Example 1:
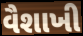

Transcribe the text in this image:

વૈશાખી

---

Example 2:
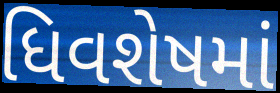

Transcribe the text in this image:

ધિવશેષમાં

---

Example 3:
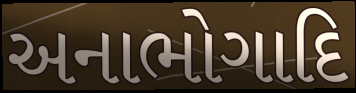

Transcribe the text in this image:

અનાભોગાદિ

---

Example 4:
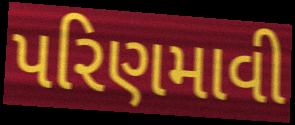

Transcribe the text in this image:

પરિણમાવી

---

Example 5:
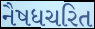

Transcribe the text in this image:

નૈષધચરિત